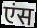
एंस